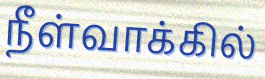
நீள்வாக்கில்